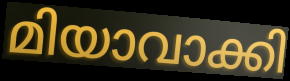
മിയാവാക്കി